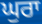
ਘੁਰਾ